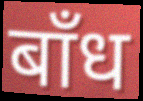
बाँध